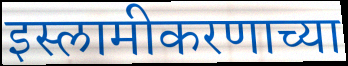
इस्लामीकरणाच्या